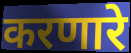
करणारे